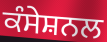
ਕੰਸੇਸ਼ਨਲ